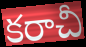
కరాచీ